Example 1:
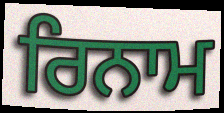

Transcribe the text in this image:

ਰਿਨਾਮ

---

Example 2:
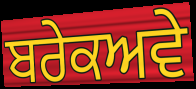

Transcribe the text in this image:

ਬਰੇਕਅਵੇ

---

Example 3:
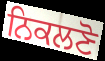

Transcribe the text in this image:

ਨਿਕਲਣੋ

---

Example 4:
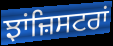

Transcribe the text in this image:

ਝਾਂਜ਼ਿਸਟਰਾਂ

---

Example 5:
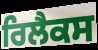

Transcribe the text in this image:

ਰਿਲੈਕਸ